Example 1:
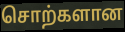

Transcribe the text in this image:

சொற்களான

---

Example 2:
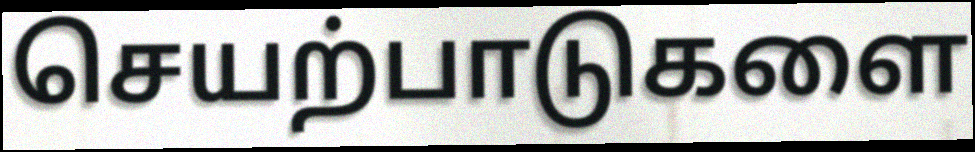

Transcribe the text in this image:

செயற்பாடுகளை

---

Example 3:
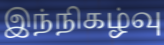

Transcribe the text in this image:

இந்நிகழ்வு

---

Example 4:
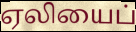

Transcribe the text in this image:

ஏலியைப்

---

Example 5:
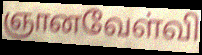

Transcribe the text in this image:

ஞானவேள்வி